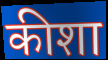
कीशा